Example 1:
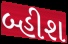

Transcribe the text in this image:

બ્હીશ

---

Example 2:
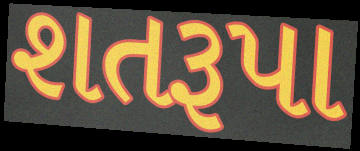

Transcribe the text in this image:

શતરૂપા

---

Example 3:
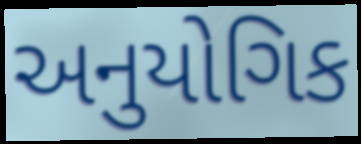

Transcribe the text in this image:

અનુયોગિક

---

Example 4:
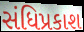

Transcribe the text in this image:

સંધિપ્રકાશ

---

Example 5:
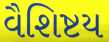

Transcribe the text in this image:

વૈશિષ્ટય